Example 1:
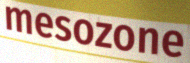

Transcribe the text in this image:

mesozone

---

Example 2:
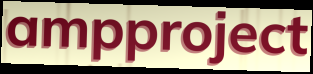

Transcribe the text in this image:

ampproject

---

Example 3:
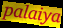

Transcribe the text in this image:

palaiya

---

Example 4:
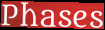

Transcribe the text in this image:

Phases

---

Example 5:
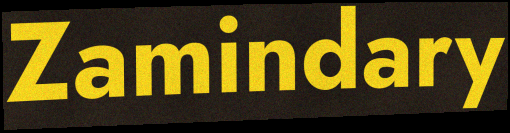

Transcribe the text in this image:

Zamindary